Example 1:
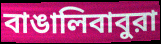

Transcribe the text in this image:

বাঙালিবাবুরা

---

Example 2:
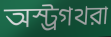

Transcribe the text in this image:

অস্ট্রগথরা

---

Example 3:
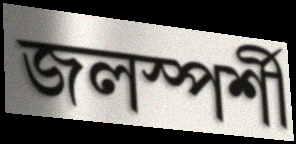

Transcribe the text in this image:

জলস্পর্শী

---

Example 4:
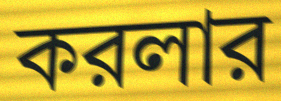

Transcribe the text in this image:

করলার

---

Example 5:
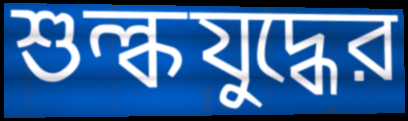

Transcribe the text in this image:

শুল্কযুদ্ধের